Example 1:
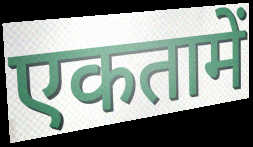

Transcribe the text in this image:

एकतामें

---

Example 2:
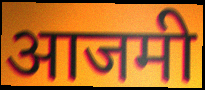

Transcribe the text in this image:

आजमी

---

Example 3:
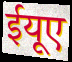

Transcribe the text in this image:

ईयूए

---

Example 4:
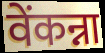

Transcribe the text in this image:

वेंकन्ना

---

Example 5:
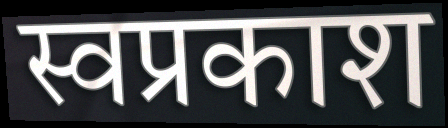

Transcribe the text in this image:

स्वप्रकाश